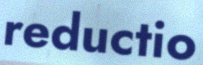
reductio